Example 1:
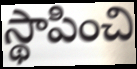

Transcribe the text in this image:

స్థాపించి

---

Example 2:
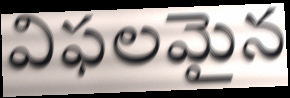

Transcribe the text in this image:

విఫలమైన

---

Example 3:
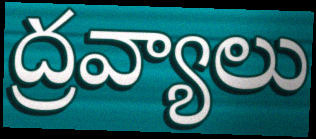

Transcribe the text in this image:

ద్రవ్యాలు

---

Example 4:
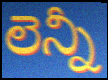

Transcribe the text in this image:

లెన్నీ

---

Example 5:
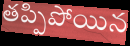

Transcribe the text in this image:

తప్పిపోయిన